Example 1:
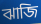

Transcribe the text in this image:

ঝাজি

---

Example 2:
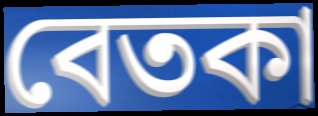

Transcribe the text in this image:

বেতকা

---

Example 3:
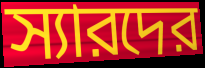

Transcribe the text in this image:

স্যারদের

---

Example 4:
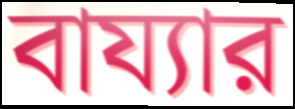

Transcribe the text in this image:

বায্যার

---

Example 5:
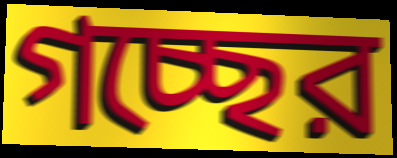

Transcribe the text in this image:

গচ্ছের